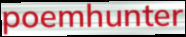
poemhunter